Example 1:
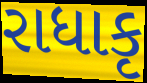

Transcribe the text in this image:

રાધાકૃ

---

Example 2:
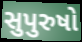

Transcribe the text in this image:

સુપુરુષો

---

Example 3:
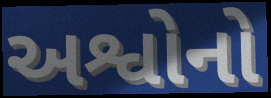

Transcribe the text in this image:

અશ્વોનો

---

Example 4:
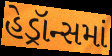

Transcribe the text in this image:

હેડ્રૉન્સમાં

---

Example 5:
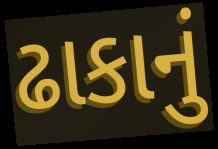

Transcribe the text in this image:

ઢાકાનું